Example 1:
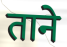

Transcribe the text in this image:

ताने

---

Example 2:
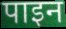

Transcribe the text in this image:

पाइन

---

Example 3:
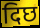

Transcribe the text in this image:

दिछ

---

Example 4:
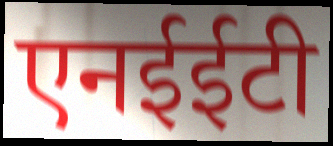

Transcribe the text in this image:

एनईईटी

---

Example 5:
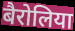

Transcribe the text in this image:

बैरोलिया